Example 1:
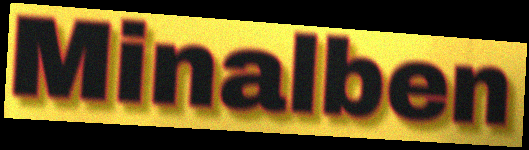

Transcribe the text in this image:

Minalben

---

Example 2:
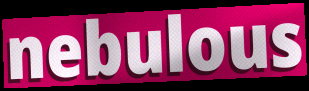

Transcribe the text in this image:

nebulous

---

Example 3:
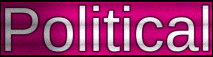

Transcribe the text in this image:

Political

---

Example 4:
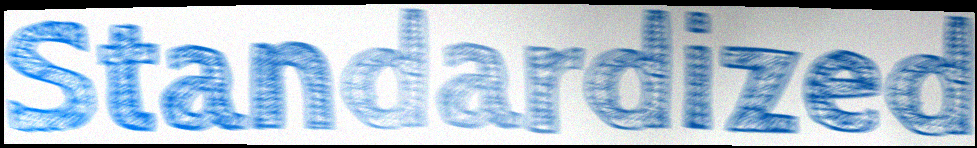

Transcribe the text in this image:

Standardized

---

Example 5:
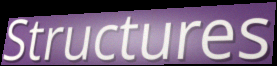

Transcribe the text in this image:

Structures